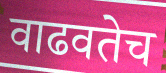
वाढवतेच